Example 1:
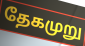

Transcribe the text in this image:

தேகமுறு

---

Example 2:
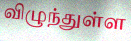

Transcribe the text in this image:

விழுந்துள்ள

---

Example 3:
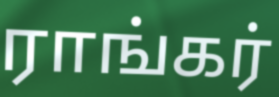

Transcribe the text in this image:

ராங்கர்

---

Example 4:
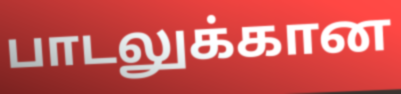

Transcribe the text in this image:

பாடலுக்கான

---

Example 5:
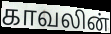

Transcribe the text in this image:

காவலின்